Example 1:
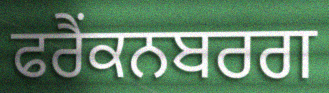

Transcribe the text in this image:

ਫਰੈਂਕਨਬਰਗ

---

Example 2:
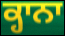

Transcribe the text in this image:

ਕ੍ਹਾਨਾ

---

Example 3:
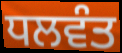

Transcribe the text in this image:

ਧਲਵੰਤ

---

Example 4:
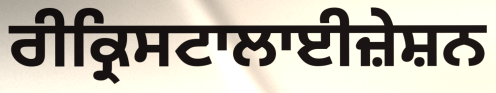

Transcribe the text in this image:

ਰੀਕ੍ਰਿਸਟਾਲਾਈਜ਼ੇਸ਼ਨ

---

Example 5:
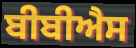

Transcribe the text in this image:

ਬੀਬੀਐਸ